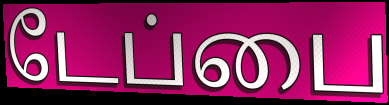
டேப்பை